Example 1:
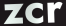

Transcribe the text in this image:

zcr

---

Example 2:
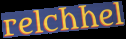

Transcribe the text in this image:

relchhel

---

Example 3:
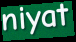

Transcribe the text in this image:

niyat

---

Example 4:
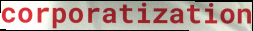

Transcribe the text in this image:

corporatization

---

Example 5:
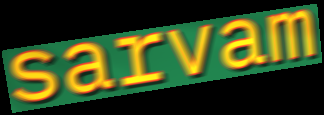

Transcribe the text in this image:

sarvam